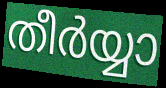
തീർയ്യാ